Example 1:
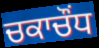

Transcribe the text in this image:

ਚਕਾਚੌਂਧ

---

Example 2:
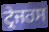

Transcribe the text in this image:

ਟ੍ਰੇਜਰਸ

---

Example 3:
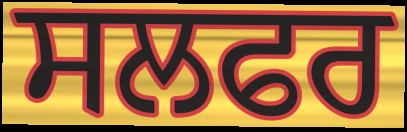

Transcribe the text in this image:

ਸਲਫਰ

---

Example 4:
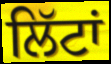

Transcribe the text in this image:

ਲਿੱਟਾਂ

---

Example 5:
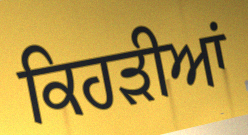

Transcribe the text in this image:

ਕਿਹੜੀਆਂ